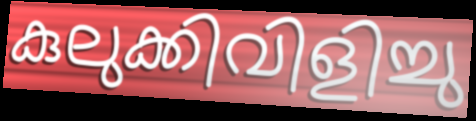
കുലുക്കിവിളിച്ചു